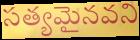
సత్యమైనవని